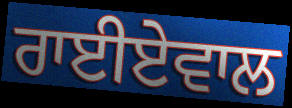
ਰਾਈਏਵਾਲ